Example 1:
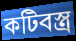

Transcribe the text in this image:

কটিবস্ত্র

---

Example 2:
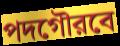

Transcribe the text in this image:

পদগৌরবে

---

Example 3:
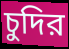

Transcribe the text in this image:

চুদির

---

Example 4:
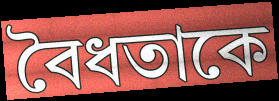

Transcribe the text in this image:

বৈধতাকে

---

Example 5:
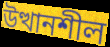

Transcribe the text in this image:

উত্থানশীল